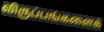
விருப்பங்களைக்